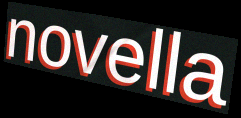
novella